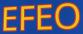
EFEO